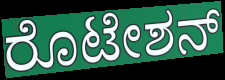
ರೊಟೇಶನ್